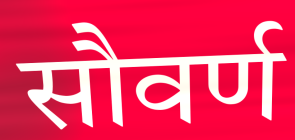
सौवर्ण